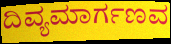
ದಿವ್ಯಮಾರ್ಗಣವ